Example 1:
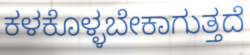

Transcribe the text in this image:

ಕಳಕೊಳ್ಳಬೇಕಾಗುತ್ತದೆ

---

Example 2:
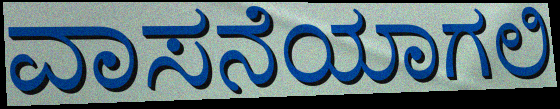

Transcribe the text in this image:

ವಾಸನೆಯಾಗಲಿ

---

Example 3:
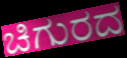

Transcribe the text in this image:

ಚಿಗುರದ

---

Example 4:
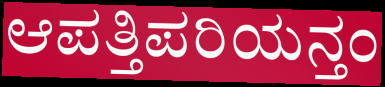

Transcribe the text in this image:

ಆಪತ್ತಿಪರಿಯನ್ತಂ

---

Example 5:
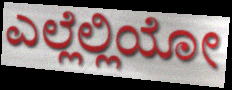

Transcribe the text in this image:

ಎಲ್ಲೆಲ್ಲಿಯೋ